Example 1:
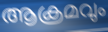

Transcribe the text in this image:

ആക്രമവും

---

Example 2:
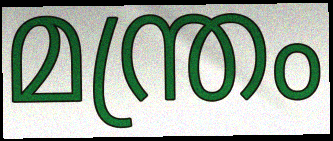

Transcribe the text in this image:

മന്ത്രം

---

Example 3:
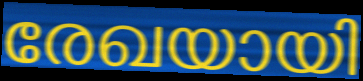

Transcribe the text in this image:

രേഖയായി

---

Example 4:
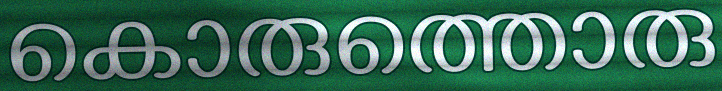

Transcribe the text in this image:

കൊരുത്തൊരു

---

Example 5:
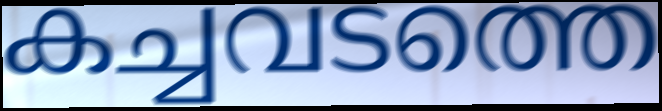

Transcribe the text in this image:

കച്ചവടത്തെ